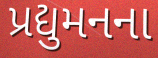
પ્રદ્યુમનના